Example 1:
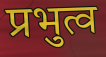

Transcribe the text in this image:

प्रभुत्व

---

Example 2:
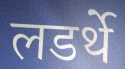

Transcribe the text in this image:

लडर्थे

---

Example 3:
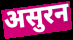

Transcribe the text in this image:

असुरन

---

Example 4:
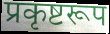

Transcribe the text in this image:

प्रकृष्टरूप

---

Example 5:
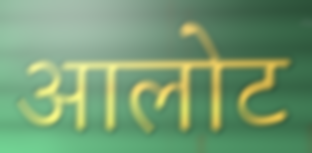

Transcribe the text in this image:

आलोट